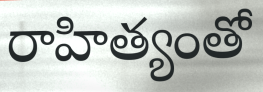
రాహిత్యంతో